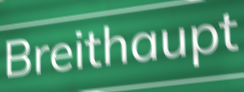
Breithaupt